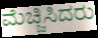
ಮೆಚ್ಚಿಸಿದರು